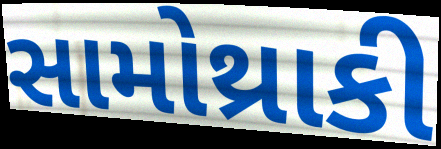
સામોથ્રાકી